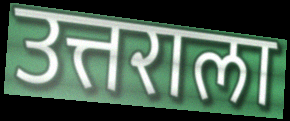
उत्तराला